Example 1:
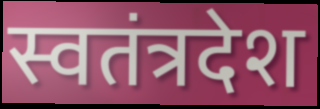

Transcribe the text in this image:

स्वतंत्रदेश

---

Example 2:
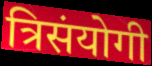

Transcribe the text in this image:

त्रिसंयोगी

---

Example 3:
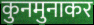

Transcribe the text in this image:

कुनमुनाकर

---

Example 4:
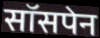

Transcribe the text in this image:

सॉसपेन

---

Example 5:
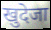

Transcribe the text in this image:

खुदेजा